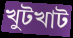
খুটখাট